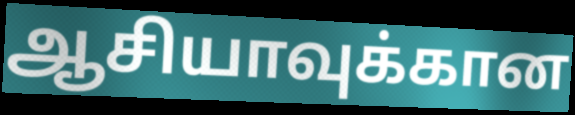
ஆசியாவுக்கான